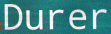
Durer